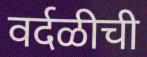
वर्दळीची